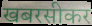
खबरसीकर